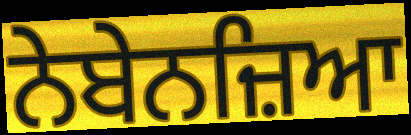
ਨੇਬੇਨਜ਼ਿਆ